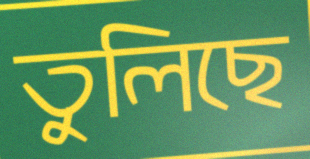
তুলিছে